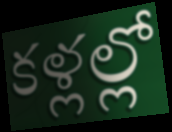
కళ్లల్లో